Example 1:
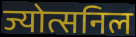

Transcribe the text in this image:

ज्योत्सनिल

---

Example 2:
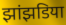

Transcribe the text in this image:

झांझडिया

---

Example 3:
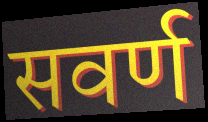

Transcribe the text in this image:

सवर्ण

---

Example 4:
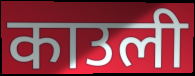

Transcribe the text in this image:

काउली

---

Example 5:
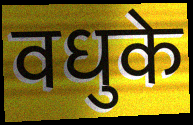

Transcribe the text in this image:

वधुके